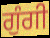
ਗੁੰਗੀ